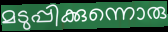
മടുപ്പിക്കുന്നൊരു